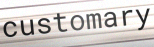
customary